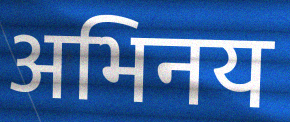
अभिनय